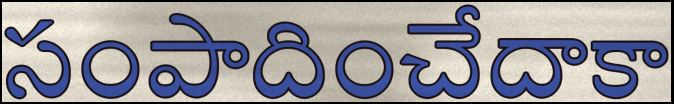
సంపాదించేదాకా